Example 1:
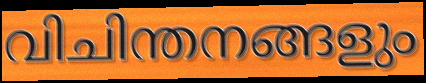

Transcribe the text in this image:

വിചിന്തനങ്ങളും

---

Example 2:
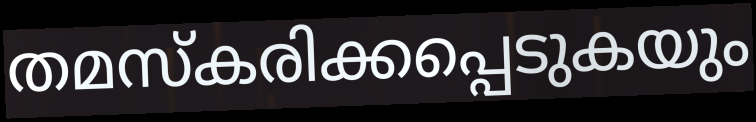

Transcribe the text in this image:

തമസ്കരിക്കപ്പെടുകയും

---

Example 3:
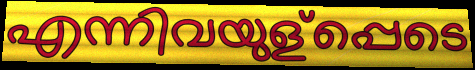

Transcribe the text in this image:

എന്നിവയുള്പ്പെടെ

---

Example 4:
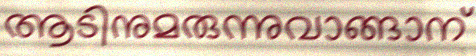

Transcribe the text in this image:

ആടിനുമരുന്നുവാങ്ങാന്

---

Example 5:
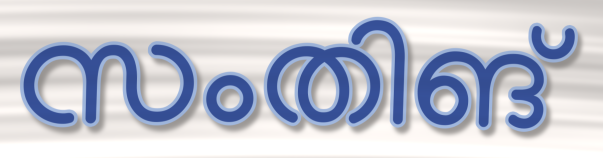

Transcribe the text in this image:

സംതിങ്